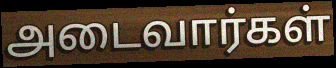
அடைவார்கள்